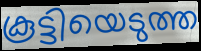
കൂട്ടിയെടുത്ത